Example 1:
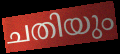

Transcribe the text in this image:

ചതിയും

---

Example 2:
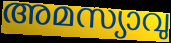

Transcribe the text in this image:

അമസ്യാവു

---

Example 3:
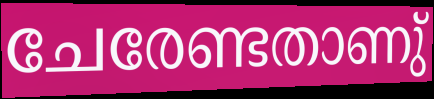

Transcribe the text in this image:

ചേരേണ്ടതാണു്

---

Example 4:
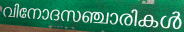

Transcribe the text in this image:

വിനോദസഞ്ചാരികൾ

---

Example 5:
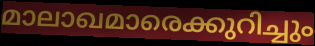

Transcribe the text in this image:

മാലാഖമാരെക്കുറിച്ചും